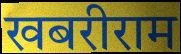
खबरीराम